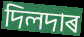
দিলদাৰ